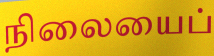
நிலையைப்